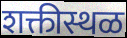
शक्तीस्थळ